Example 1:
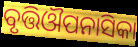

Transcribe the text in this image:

ବୃତ୍ତିଔପନାସିକା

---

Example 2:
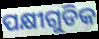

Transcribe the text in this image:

ପକ୍ଷୀଗୁଡିକ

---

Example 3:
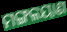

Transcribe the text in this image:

ମଙ୍ଗଳୟାଣ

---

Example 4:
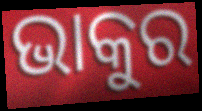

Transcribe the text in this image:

ଭାକୁର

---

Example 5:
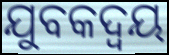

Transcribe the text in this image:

ଯୁବକଦ୍ୱୟ